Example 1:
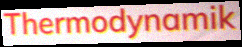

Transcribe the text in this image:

Thermodynamik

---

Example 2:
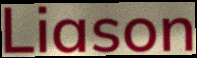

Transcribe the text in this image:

Liason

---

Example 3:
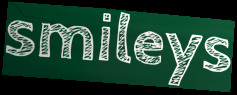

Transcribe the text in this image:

smileys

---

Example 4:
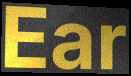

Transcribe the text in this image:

Ear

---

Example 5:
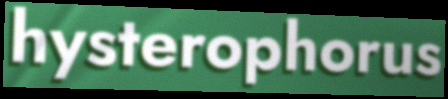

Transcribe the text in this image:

hysterophorus